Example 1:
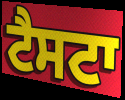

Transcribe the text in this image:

ਟੈਸਟਾ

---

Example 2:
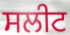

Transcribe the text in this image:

ਸਲੀਟ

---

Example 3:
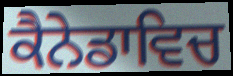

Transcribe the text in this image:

ਕੈਨੇਡਾਵਿਚ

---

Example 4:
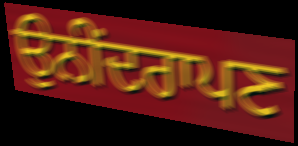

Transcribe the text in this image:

ਉਨੀਂਦਰਾਪਣ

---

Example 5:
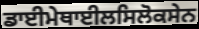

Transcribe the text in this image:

ਡਾਈਮੇਥਾਈਲਸਿਲੋਕਸੇਨ